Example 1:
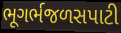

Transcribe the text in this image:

ભૂગર્ભજળસપાટી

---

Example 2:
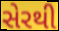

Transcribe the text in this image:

સેરથી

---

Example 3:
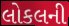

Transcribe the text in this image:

લોકલની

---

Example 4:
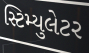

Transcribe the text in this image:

સ્ટિમ્યુલેટર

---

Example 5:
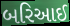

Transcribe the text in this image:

બરિઆઈ